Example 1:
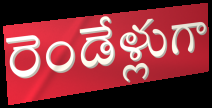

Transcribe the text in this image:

రెండేళ్లుగా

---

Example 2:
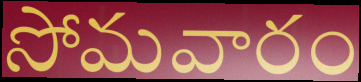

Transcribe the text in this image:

సోమవారం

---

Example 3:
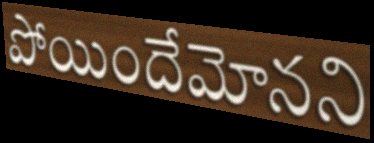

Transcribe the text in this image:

పోయిందేమోనని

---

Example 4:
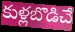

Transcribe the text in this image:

కుళ్లబొడిచే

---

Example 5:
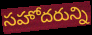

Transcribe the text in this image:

సహోదరున్ని